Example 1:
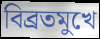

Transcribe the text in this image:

বিব্রতমুখে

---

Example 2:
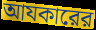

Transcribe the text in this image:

আযকারের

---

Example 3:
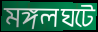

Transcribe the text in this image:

মঙ্গলঘটে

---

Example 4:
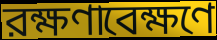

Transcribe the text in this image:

রক্ষণাবেক্ষণে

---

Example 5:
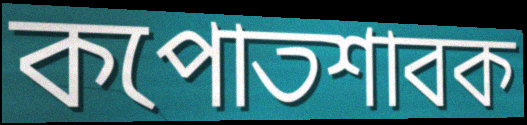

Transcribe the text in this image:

কপোতশাবক